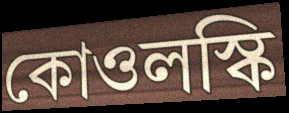
কোওলস্কি